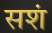
सशं